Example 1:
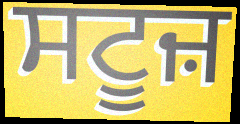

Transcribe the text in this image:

ਸਟੂਜ਼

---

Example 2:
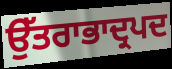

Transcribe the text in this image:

ਉੱਤਰਾਭਾਦ੍ਰਪਦ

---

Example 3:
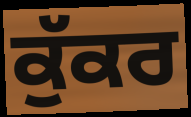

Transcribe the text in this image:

ਕੁੱਕਰ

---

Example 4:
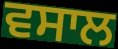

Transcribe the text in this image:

ਵਸਾਲ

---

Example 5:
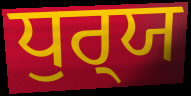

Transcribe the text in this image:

ਧੁਰ੍‍ਯ